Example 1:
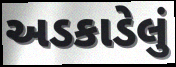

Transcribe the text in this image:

અડકાડેલું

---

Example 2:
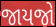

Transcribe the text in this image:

જાયજો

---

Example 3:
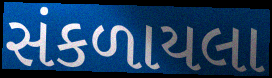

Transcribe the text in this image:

સંકળાયલા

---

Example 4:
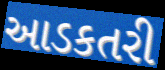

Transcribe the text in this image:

આડકતરી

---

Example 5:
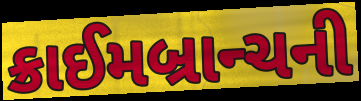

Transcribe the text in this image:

ક્રાઈમબ્રાન્ચની